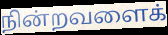
நின்றவளைக்